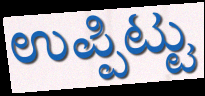
ಉಪ್ಪಿಟ್ಟು